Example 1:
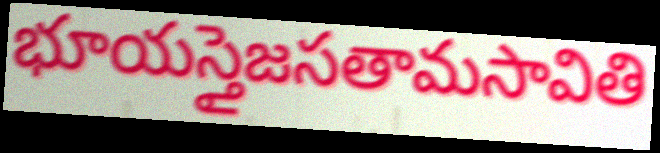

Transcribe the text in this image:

భూయస్తైజసతామసావితి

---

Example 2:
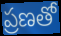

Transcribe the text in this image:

ప్రణతో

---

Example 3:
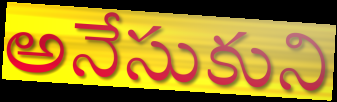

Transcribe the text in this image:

అనేసుకుని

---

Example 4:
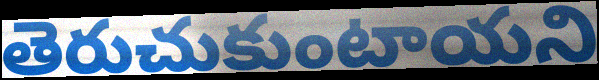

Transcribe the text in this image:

తెరుచుకుంటాయని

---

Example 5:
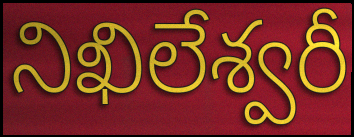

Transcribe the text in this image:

నిఖిలేశ్వరీ